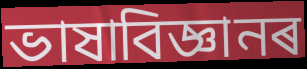
ভাষাবিজ্ঞানৰ